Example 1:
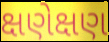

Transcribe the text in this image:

ક્ષણેક્ષણ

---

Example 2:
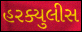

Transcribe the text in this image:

હરક્યુલીસ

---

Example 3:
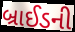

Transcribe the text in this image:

બ્રાઈડની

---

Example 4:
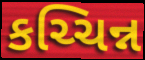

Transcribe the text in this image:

કચ્ચિન્ન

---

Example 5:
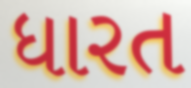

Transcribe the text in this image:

ધારત